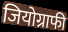
जियोग्राफी